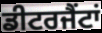
ਡੀਟਰਜੈਂਟਾਂ